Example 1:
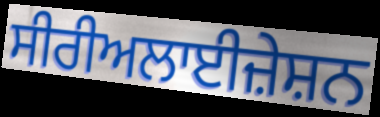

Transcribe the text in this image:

ਸੀਰੀਅਲਾਈਜ਼ੇਸ਼ਨ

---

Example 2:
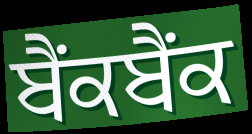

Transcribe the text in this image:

ਬੈਂਕਬੈਂਕ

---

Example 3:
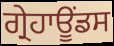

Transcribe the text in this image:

ਗ੍ਰੇਹਾਊਂਡਸ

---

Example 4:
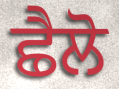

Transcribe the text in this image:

ਛੈਲੋ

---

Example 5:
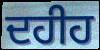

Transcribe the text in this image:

ਦਹੀਹ